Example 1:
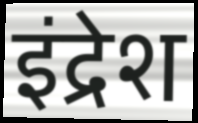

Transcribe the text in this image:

इंद्रेश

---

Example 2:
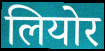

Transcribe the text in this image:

लियोर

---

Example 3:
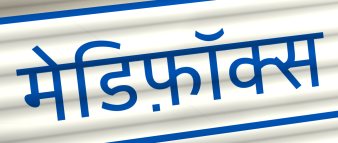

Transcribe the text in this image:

मेडिफ़ॉक्स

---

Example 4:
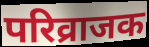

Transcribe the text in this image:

परिव्राजक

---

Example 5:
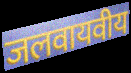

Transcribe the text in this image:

जलवायवीय